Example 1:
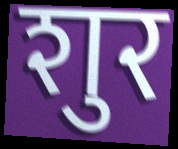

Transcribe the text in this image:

शुर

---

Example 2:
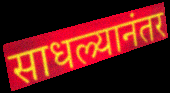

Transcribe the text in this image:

साधल्यानंतर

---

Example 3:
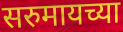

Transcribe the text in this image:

सरुमायच्या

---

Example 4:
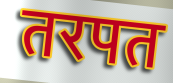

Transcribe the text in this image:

तरपत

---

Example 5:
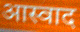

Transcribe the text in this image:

आस्वाद